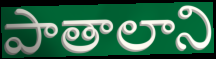
పాతాలాని